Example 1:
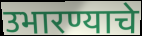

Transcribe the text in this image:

उभारण्याचे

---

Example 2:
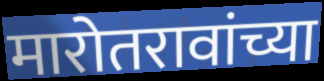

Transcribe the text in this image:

मारोतरावांच्या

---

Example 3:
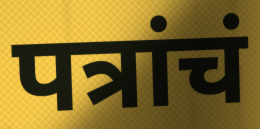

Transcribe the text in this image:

पत्रांचं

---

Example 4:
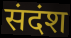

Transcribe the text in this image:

संदंश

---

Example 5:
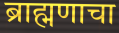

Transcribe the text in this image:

ब्राह्मणाचा